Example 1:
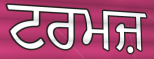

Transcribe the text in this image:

ਟਰਮਜ਼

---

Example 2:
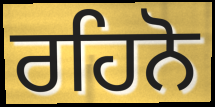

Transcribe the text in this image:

ਰਹਿਨੋ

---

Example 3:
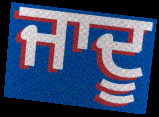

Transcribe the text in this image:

ਜਾਦੂ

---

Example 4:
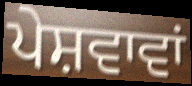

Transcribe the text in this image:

ਪੇਸ਼ਵਾਵਾਂ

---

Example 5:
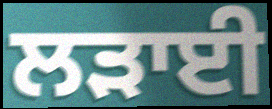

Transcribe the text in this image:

ਲੜਾਈ